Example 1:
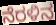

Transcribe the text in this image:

ನೆರಳಿನ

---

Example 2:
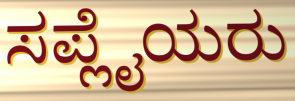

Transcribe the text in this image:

ಸಪ್ಲೈಯರು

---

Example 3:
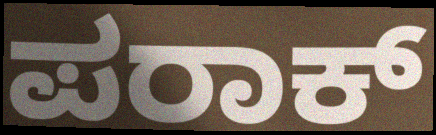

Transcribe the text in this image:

ಪರಾಕ್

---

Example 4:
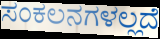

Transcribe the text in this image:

ಸಂಕಲನಗಳಲ್ಲದೆ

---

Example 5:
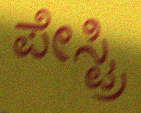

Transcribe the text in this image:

ಪೇಸ್ಟ್ರಿ